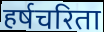
हर्षचरिता